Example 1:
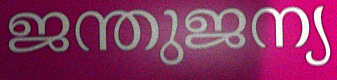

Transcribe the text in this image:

ജന്തുജന്യ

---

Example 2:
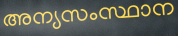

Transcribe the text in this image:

അന്യസംസ്ഥാന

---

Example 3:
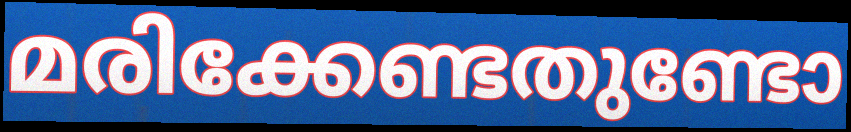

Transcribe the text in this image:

മരിക്കേണ്ടതുണ്ടോ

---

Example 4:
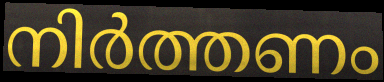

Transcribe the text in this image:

നിർത്തണം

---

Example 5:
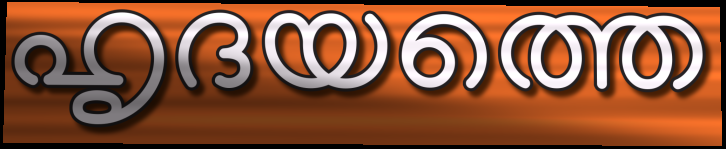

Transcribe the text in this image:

ഹൃദയത്തെ